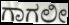
ಗಾಗಲೀ